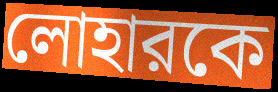
লোহারকে